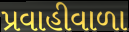
પ્રવાહીવાળા